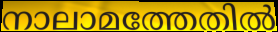
നാലാമത്തേതിൽ